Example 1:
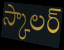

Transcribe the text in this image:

స్కాలర్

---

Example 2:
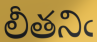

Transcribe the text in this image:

లీతనిఁ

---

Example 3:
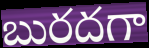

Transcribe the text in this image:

బురదగా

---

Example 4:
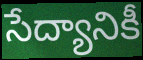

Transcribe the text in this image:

సేద్యానికీ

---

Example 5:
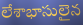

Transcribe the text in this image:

లేశాభాసులైన